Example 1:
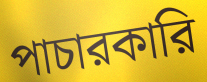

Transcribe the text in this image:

পাচারকারি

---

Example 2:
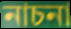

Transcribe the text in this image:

নাচনা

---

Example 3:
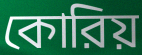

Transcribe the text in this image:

কোরিয়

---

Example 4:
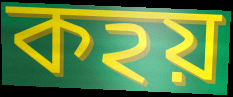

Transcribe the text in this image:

কহয়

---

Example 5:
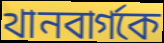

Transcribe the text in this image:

থানবার্গকে